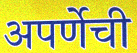
अपर्णेची